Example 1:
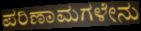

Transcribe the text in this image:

ಪರಿಣಾಮಗಳೇನು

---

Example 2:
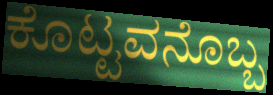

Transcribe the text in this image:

ಕೊಟ್ಟವನೊಬ್ಬ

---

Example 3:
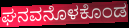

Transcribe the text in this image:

ಘನವನೊಳಕೊಂಡ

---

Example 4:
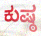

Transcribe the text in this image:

ಕುಷ್ಠ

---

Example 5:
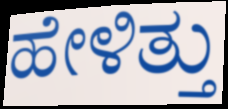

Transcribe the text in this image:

ಹೇಳಿತ್ತು